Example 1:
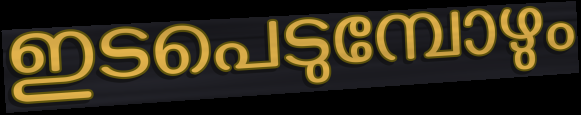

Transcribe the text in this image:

ഇടപെടുമ്പോഴും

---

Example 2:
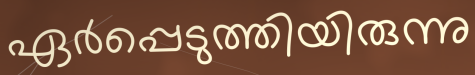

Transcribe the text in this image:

ഏർപ്പെടുത്തിയിരുന്നു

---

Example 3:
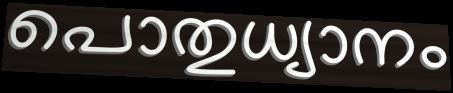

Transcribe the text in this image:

പൊതുധ്യാനം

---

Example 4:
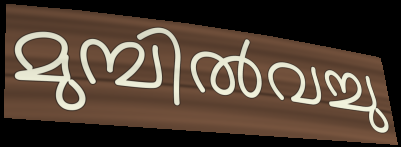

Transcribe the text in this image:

മുമ്പിൽവച്ചു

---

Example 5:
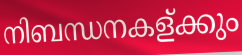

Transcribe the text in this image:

നിബന്ധനകള്ക്കും